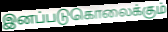
இனப்படுகொலைக்கும்